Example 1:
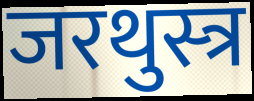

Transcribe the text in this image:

जरथुस्‍त्र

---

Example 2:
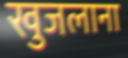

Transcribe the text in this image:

खुजलाना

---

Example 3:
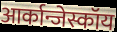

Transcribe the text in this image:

आर्कान्जेस्कॉय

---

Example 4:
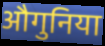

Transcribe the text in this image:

औगुनिया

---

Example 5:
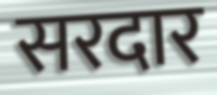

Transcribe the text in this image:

सरदार